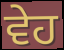
ਵੇਹ